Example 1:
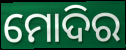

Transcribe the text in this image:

ମୋଦିର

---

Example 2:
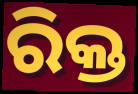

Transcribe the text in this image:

ରିକ୍ତ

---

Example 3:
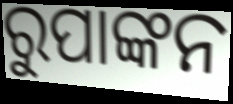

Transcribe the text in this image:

ରୁପାଙ୍କନ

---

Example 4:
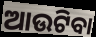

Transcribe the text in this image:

ଆଉଟିବା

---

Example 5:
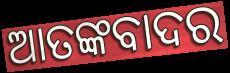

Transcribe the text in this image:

ଆତଙ୍କବାଦର